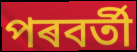
পৰবৰ্তী